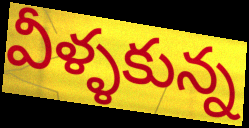
వీళ్ళకున్న